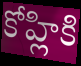
కోహ్లికి